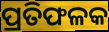
ପ୍ରତିଫଳକ